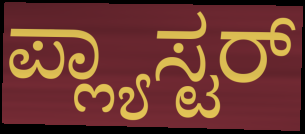
ಪ್ಲ್ಯಾಸ್ಟರ್